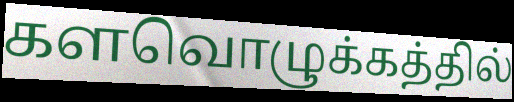
களவொழுக்கத்தில்